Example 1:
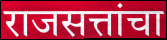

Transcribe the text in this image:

राजसत्तांचा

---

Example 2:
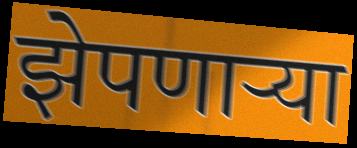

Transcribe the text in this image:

झेपणार्‍या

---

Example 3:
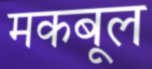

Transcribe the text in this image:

मकबूल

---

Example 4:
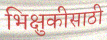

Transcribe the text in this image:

भिक्षुकीसाठी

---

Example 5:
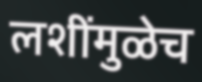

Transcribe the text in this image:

लशींमुळेच